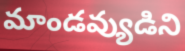
మాండవ్యుడిని